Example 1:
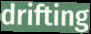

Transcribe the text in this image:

drifting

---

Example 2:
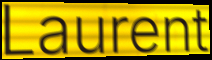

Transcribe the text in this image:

Laurent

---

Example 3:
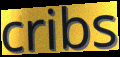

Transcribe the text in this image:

cribs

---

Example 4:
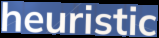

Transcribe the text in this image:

heuristic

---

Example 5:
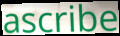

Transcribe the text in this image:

ascribe